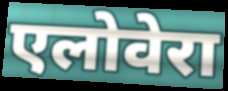
एलोवेरा